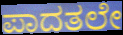
ಪಾದತಲೇ